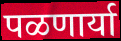
पळणार्या